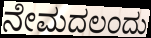
ನೇಮದಲಂದು